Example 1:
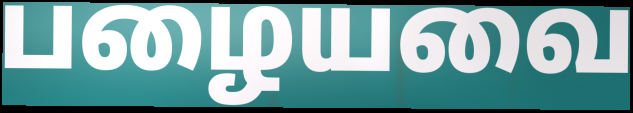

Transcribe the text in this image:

பழையவை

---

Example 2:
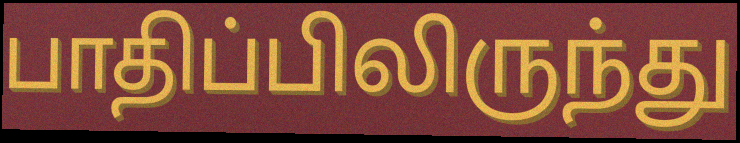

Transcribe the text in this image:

பாதிப்பிலிருந்து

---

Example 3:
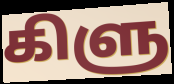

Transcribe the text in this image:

கிளு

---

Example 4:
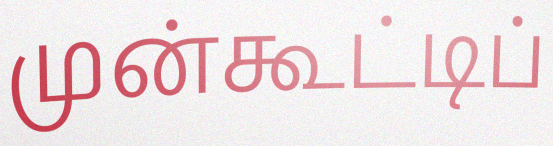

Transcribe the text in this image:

முன்கூட்டிப்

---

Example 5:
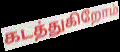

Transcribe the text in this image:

கடத்துகிறோம்